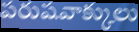
పరుషవాక్కులు